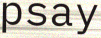
psay